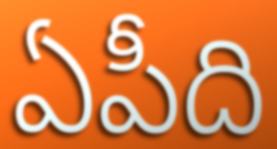
ఏపీది